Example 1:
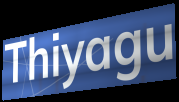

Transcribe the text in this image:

Thiyagu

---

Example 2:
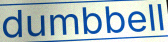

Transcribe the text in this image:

dumbbell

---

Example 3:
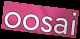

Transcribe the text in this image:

oosai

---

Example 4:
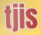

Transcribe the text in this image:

tjis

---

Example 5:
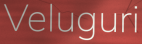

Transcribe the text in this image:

Veluguri